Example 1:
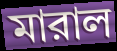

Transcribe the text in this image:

মারাল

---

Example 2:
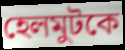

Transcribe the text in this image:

হেলমুটকে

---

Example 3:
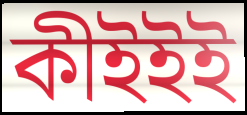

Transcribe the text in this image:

কীইইই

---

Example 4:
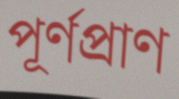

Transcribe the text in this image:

পূর্ণপ্রাণ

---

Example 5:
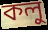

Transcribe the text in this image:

কলু